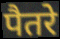
पैतरे